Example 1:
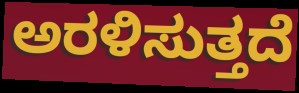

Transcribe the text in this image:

ಅರಳಿಸುತ್ತದೆ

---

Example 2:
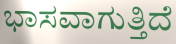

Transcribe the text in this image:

ಭಾಸವಾಗುತ್ತಿದೆ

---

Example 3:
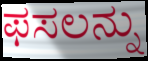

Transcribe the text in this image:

ಫಸಲನ್ನು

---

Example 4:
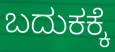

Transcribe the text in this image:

ಬದುಕಕ್ಕೆ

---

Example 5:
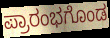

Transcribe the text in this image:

ಪ್ರಾರಂಭಗೊಂಡ